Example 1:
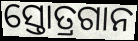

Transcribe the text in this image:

ସ୍ତୋତ୍ରଗାନ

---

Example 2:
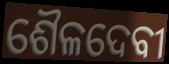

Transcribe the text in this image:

ଶୈଳଦେବୀ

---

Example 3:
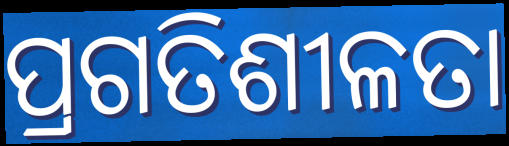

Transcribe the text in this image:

ପ୍ରଗତିଶୀଳତା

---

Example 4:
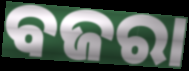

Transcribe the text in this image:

ବଜରା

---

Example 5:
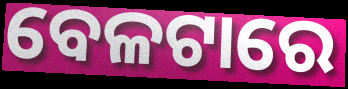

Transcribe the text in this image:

ବେଳଟାରେ